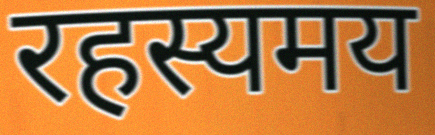
रहस्यमय